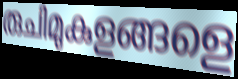
രുചിമുകുളങ്ങളെ